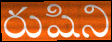
రుషిని